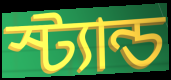
স্ট্যান্ড